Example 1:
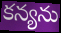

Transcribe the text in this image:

కన్యను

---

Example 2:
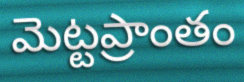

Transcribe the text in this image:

మెట్టప్రాంతం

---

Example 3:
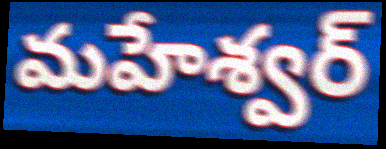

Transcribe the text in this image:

మహేశ్వర్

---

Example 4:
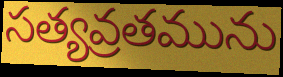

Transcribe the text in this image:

సత్యవ్రతమును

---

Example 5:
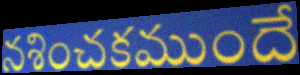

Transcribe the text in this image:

నశించకముందే